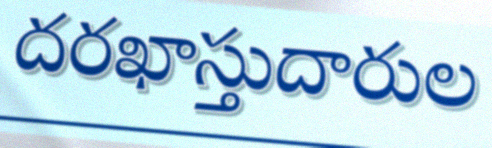
దరఖాస్తుదారుల